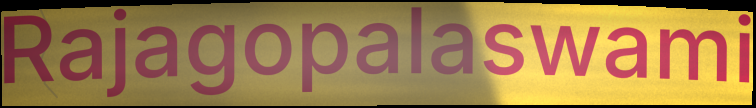
Rajagopalaswami